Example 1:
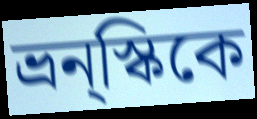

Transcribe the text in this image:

ভ্রন্‌স্কিকে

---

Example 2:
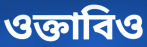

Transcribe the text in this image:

ওক্তাবিও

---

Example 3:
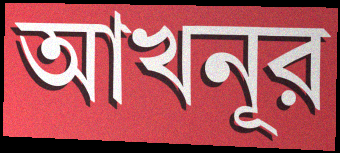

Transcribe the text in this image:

আখনূর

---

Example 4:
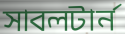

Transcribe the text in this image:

সাবলটার্ন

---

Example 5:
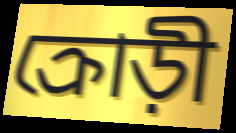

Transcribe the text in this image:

ক্রোড়ী